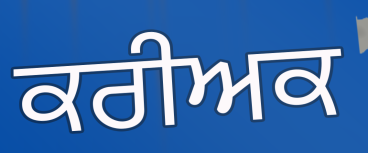
ਕਰੀਅਕ